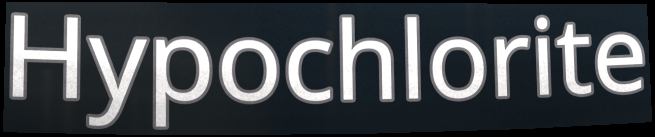
Hypochlorite